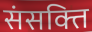
संसक्ति